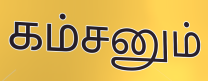
கம்சனும்